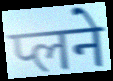
प्लने